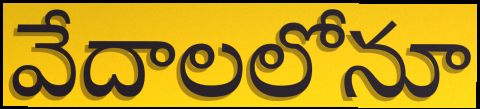
వేదాలలోనూ